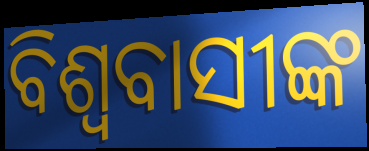
ବିଶ୍ଵବାସୀଙ୍କ